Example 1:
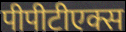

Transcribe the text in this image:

पीपीटीएक्स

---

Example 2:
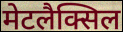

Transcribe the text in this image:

मेटलैक्सिल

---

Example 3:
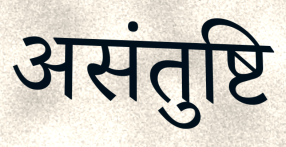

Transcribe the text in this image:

असंतुष्टि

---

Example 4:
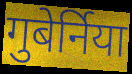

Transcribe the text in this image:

गुबेर्निया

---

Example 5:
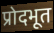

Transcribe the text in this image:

प्रोदभूत